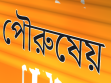
পৌরুষেয়